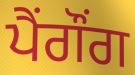
ਪੈਂਗੌਂਗ